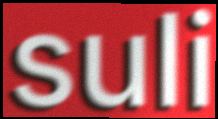
suli